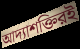
আদ্যাশক্তিরই